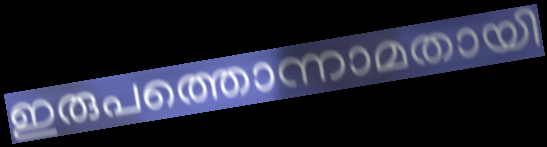
ഇരുപത്തൊന്നാമതായി